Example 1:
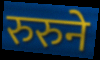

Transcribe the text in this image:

रुरुने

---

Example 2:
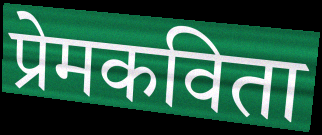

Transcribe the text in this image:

प्रेमकविता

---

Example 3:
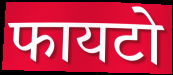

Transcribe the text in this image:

फायटो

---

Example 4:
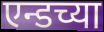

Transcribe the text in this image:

एन्डच्या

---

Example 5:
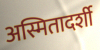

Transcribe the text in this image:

अस्मितादर्शी